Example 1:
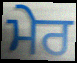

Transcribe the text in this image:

ਮੇਰ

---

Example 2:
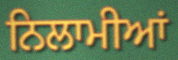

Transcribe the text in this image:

ਨਿਲਾਮੀਆਂ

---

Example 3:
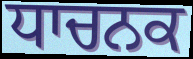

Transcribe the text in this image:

ਧਾਚਨਕ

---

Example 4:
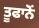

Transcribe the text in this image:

ਤੂਫਾਨੋਂ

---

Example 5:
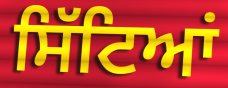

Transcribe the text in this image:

ਸਿੱਟਿਆਂ